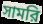
সামরি